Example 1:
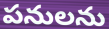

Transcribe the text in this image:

పనులను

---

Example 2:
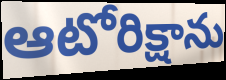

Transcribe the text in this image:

ఆటోరిక్షాను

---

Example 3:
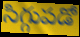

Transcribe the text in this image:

సిగ్గుపడో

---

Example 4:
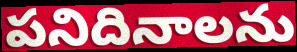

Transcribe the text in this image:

పనిదినాలను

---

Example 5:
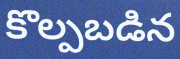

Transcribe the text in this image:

కొల్పబడిన